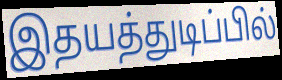
இதயத்துடிப்பில்